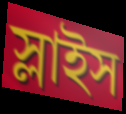
স্লাইস